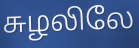
சுழலிலே